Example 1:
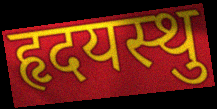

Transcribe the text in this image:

हृदयस्थु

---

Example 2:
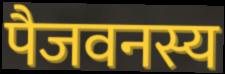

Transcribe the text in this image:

पैजवनस्य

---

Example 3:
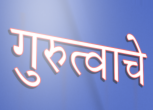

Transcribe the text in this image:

गुरुत्वाचे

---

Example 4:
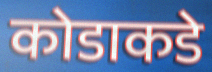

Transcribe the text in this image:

कोडाकडे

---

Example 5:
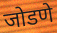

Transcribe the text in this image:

जोडणे